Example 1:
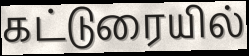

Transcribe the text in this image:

கட்டுரையில்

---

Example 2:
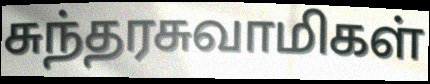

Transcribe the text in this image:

சுந்தரசுவாமிகள்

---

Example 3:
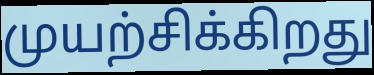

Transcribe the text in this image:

முயற்சிக்கிறது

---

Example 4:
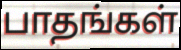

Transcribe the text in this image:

பாதங்கள்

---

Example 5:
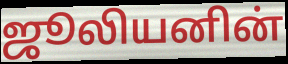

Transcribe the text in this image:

ஜூலியனின்